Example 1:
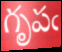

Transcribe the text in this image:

గృపఁ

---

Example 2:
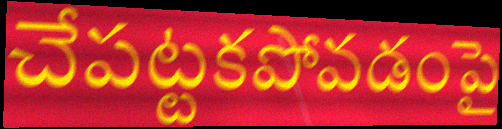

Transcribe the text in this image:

చేపట్టకపోవడంపై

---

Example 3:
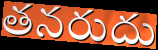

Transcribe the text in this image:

తనరుదు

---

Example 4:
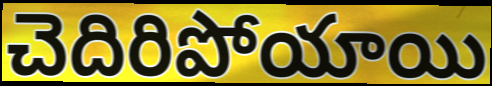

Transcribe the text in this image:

చెదిరిపోయాయి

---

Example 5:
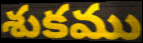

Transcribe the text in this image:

శుకము